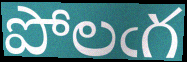
పోలఁగ